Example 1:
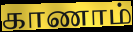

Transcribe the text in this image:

காணாம்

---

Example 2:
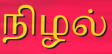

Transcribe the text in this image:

நிழல்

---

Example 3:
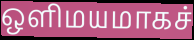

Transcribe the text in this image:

ஒளிமயமாகச்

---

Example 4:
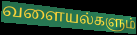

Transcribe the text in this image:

வளையல்களும்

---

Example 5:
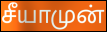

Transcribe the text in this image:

சீயாமுன்